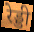
रेड्डी